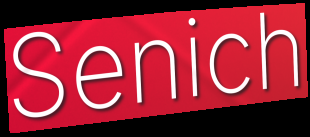
Senich